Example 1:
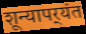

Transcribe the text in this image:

शून्यापर्यंत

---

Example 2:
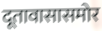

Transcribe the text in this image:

दूतावासासमोर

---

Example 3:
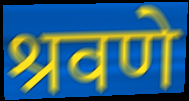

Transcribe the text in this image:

श्रवणे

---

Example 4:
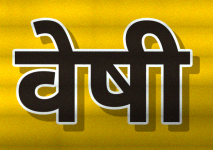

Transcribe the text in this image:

वेषी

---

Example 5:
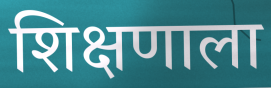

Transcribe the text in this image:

शिक्षणाला